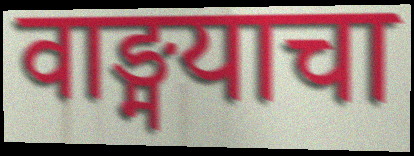
वाङ्मयाचा